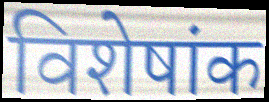
विशेषांक